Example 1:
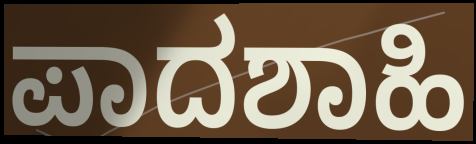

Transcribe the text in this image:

ಪಾದಶಾಹಿ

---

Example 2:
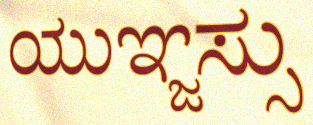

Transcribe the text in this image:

ಯುಞ್ಜಸ್ಸು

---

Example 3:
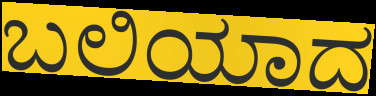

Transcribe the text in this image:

ಬಲಿಯಾದ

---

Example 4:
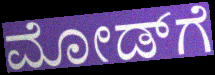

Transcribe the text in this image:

ಮೋಡ್‌ಗೆ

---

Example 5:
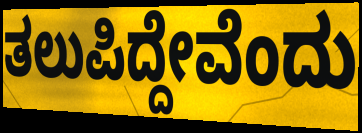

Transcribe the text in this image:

ತಲುಪಿದ್ದೇವೆಂದು